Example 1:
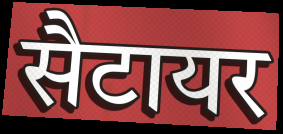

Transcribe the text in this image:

सैटायर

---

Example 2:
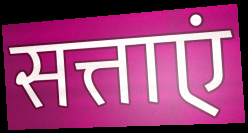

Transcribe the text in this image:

सत्ताएं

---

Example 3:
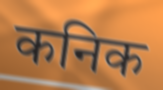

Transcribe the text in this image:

कनिक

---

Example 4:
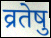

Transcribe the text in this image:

व्रतेषु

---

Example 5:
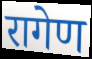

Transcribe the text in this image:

रागेण